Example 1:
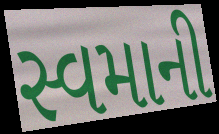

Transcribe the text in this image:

સ્વમાની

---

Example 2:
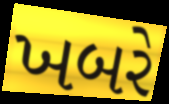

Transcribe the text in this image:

ખબરે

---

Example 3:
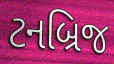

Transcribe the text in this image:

ટનબ્રિજ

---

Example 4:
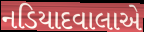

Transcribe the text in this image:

નડિયાદવાલાએ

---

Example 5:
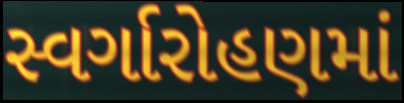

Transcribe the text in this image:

સ્વર્ગારોહણમાં